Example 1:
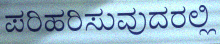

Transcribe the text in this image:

ಪರಿಹರಿಸುವುದರಲ್ಲಿ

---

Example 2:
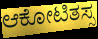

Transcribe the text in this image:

ಆಕೋಟಿತಸ್ಸ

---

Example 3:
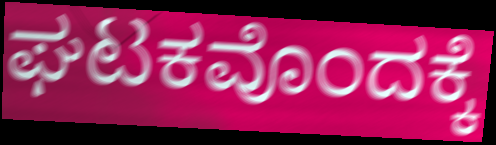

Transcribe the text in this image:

ಘಟಕವೊಂದಕ್ಕೆ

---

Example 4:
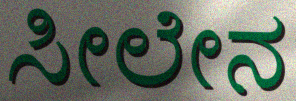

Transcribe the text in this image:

ಸೀಲೇನ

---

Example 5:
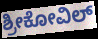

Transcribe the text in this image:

ಶ್ರೀಕೋವಿಲ್